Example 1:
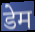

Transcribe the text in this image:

डेम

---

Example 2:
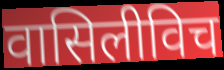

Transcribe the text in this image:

वासिलीविच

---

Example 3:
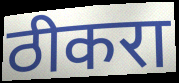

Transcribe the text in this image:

ठीकरा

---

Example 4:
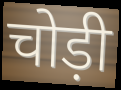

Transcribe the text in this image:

चोड़ी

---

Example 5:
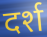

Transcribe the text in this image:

दर्श